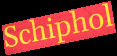
Schiphol